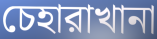
চেহারাখানা